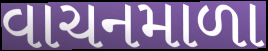
વાચનમાળા